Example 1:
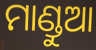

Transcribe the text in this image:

ମାଣ୍ଡୁଆ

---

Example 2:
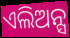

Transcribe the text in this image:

ଏଲିଅନ୍ସ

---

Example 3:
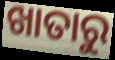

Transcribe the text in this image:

ଖାତାରୁ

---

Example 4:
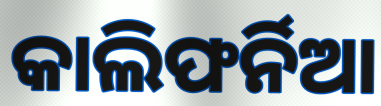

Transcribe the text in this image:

କାଲିଫର୍ନିଆ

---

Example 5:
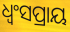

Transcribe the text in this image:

ଧ୍ୱଂସପ୍ରାୟ